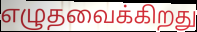
எழுதவைக்கிறது